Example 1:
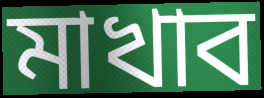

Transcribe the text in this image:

মাখাব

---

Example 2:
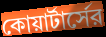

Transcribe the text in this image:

কোয়ার্টার্সের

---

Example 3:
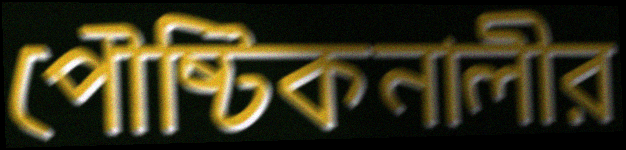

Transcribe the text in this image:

পৌষ্টিকনালীর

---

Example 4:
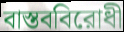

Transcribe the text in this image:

বাস্তববিরোধী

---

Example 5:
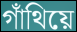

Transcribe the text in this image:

গাঁথিয়ে